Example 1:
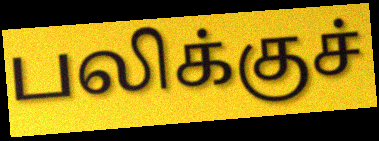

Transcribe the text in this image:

பலிக்குச்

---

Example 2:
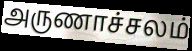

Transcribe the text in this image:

அருணாச்சலம்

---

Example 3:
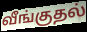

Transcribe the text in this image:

வீங்குதல்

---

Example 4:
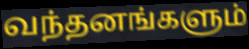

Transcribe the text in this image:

வந்தனங்களும்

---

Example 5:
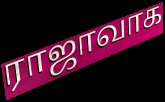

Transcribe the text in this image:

ராஜாவாக